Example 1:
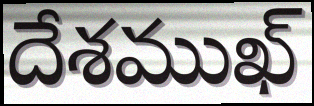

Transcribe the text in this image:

దేశముఖ్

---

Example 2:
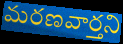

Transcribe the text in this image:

మరణవార్తని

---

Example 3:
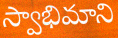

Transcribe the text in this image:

స్వాభిమాని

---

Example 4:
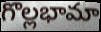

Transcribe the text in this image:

గొల్లభామా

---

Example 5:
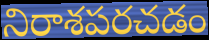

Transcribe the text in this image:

నిరాశపరచడం